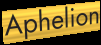
Aphelion